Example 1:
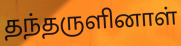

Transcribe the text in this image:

தந்தருளினாள்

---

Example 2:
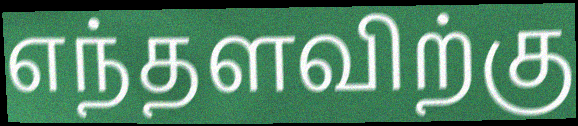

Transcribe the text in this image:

எந்தளவிற்கு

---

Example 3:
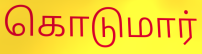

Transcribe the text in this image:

கொடுமார்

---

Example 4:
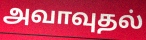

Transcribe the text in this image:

அவாவுதல்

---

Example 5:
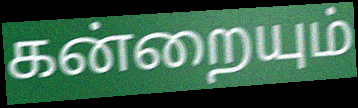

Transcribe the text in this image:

கன்றையும்